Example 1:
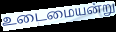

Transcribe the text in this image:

உடைமையன்று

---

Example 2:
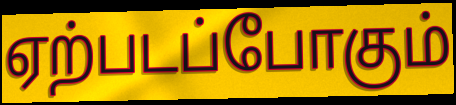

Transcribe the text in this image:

ஏற்படப்போகும்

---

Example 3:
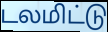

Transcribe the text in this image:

டலமிட்டு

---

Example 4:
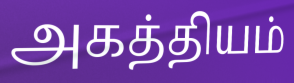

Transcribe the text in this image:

அகத்தியம்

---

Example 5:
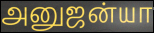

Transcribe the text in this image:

அனுஜன்யா